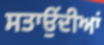
ਸਤਾਉਂਦੀਆਂ